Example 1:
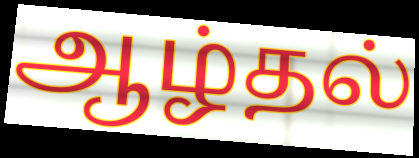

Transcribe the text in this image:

ஆழ்தல்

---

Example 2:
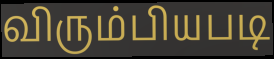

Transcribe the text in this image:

விரும்பியபடி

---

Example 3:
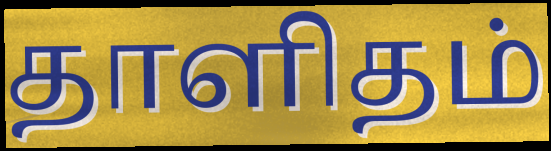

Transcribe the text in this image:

தாளிதம்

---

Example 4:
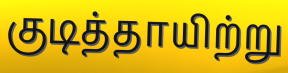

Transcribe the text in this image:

குடித்தாயிற்று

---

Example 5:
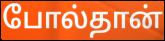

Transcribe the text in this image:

போல்தான்